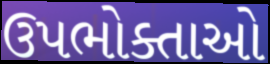
ઉપભોક્તાઓ